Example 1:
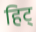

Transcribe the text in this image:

हिट्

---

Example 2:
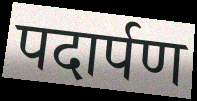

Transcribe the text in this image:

पदार्पण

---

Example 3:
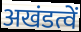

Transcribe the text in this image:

अखंडत्वें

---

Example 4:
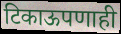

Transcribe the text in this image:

टिकाऊपणाही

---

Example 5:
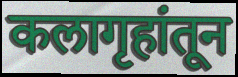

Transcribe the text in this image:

कलागृहांतून